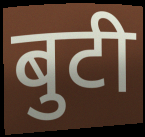
बुटी